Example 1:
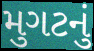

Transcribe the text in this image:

મુગટનું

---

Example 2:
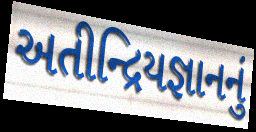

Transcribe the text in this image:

અતીન્દ્રિયજ્ઞાનનું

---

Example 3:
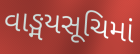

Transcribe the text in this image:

વાઙ્મયસૂચિમાં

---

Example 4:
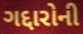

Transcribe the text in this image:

ગદ્દારોની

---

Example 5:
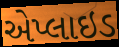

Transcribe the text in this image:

એપ્લાઇડ